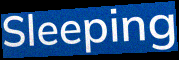
Sleeping